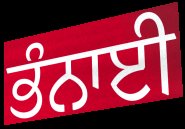
ਭੰਨਾਈ